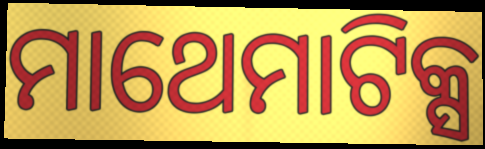
ମାଥେମାଟିକ୍ସ